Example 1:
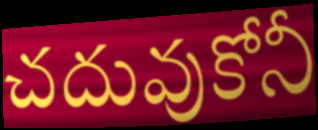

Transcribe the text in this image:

చదువుకోనీ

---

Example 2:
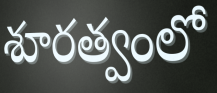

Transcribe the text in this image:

శూరత్వంలో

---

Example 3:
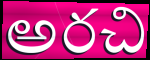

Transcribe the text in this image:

అరచి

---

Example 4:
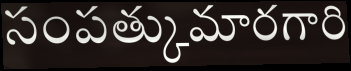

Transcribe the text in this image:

సంపత్కుమారగారి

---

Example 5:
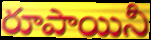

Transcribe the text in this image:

రూపాయినీ